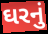
ઘરનું